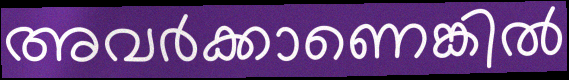
അവർക്കാണെങ്കിൽ